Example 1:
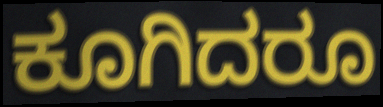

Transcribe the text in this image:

ಕೂಗಿದರೂ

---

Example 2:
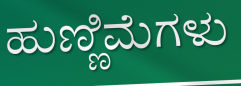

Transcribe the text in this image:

ಹುಣ್ಣಿಮೆಗಳು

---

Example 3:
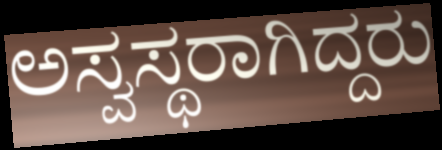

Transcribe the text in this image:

ಅಸ್ವಸ್ಥರಾಗಿದ್ದರು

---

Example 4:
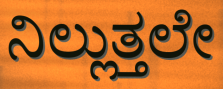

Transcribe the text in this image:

ನಿಲ್ಲುತ್ತಲೇ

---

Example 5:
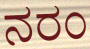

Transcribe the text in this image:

ನರಂ